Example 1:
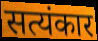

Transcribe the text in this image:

सत्यंकार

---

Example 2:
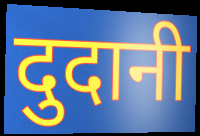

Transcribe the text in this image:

दुदानी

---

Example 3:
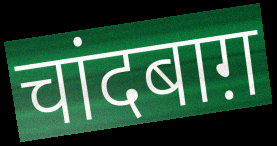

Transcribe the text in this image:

चांदबाग़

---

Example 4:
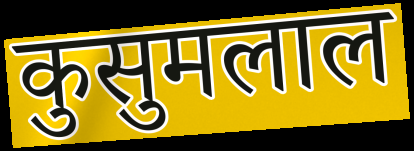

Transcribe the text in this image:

कुसुमलाल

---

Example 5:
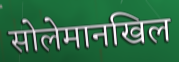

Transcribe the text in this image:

सोलेमानखिल